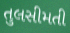
તુલસીમતી